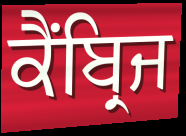
ਕੈਂਬ੍ਰਿਜ